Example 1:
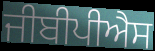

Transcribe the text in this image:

ਜੀਬੀਪੀਐਸ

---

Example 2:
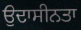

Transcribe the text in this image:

ਉਦਾਸੀਨਤਾ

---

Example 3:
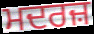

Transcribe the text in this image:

ਮਦਰਜ਼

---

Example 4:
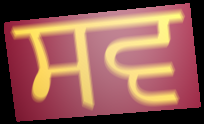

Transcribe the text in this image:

ਸਵ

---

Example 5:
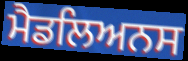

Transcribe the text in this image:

ਮੈਡਲਿਅਨਸ